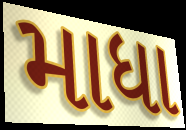
માધા